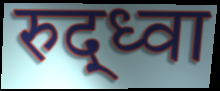
रुद्ध्वा